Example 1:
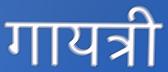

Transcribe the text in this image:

गायत्री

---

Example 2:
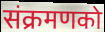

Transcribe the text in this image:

संक्रमणको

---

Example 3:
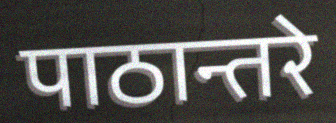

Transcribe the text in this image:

पाठान्तरे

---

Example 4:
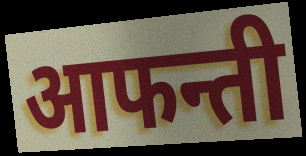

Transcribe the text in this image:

आफन्ती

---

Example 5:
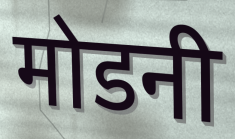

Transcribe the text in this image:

मोडनी